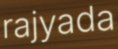
rajyada